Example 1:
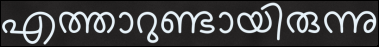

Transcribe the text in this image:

എത്താറുണ്ടായിരുന്നു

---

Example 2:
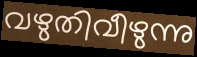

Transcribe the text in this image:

വഴുതിവീഴുന്നു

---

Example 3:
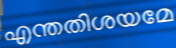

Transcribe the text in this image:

എന്തതിശയമേ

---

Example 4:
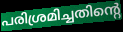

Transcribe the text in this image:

പരിശ്രമിച്ചതിന്റെ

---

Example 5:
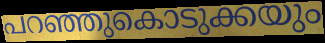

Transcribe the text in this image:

പറഞ്ഞുകൊടുക്കയും